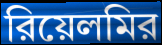
রিয়েলমির